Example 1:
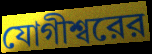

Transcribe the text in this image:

যোগীশ্বরের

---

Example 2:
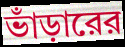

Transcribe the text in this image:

ভাঁড়ারের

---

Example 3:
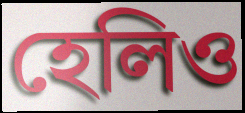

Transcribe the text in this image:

হেলিও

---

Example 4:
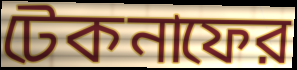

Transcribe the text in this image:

টেকনাফের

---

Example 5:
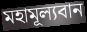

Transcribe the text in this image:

মহামূল্যবান